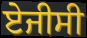
ਏਜੀਸੀ